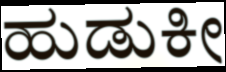
ಹುಡುಕೀ